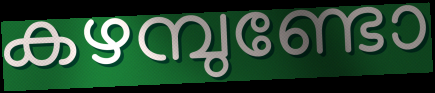
കഴമ്പുണ്ടോ